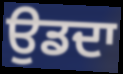
ਉਡਦਾ